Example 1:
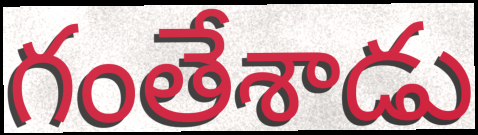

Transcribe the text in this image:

గంతేశాడు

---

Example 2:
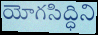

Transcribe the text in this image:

యోగసిద్ధిని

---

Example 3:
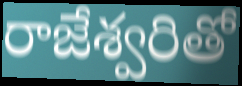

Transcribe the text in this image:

రాజేశ్వరితో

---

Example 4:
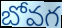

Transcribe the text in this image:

బోవగ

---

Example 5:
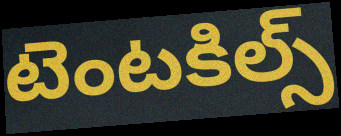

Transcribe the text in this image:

టెంటకిల్స్